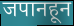
जपानहून